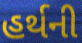
હર્થની